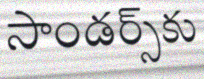
సాండర్స్‌కు